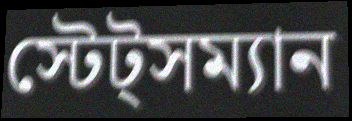
স্টেট্সম্যান